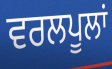
ਵਰਲਪੂਲਾਂ